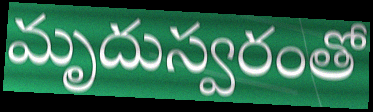
మృదుస్వరంతో